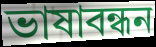
ভাষাবন্ধন